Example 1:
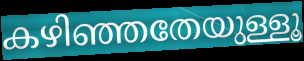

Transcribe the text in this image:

കഴിഞ്ഞതേയുള്ളൂ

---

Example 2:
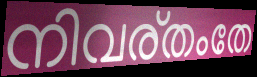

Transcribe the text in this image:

നിവര്തംതേ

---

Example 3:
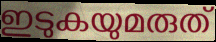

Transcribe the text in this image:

ഇടുകയുമരുത്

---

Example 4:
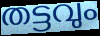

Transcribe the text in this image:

തട്ടവും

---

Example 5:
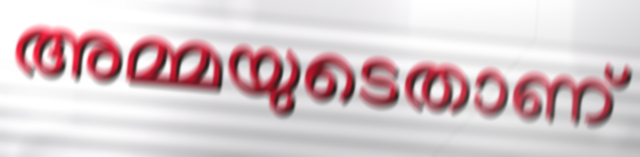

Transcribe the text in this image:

അമ്മയുടെതാണ്